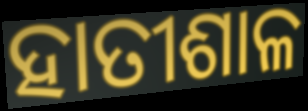
ହାତୀଶାଳ